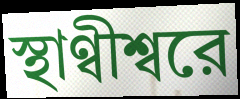
স্থাণ্বীশ্বরে